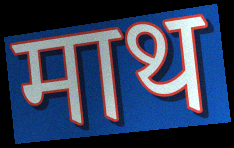
माथ